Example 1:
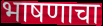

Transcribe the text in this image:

भाषणाचा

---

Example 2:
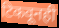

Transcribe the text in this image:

टिकवूनही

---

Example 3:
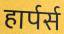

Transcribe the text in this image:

हार्पर्स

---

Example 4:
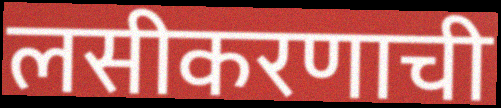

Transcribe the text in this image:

लसीकरणाची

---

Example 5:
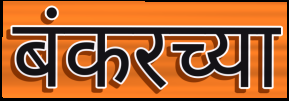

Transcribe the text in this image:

बंकरच्या